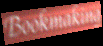
Bookmaking